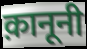
क़ानूनी